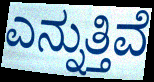
ಎನ್ನುತ್ತಿವೆ